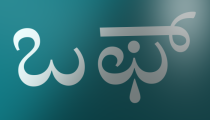
ಒಫ್